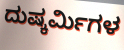
ದುಷ್ಕರ್ಮಿಗಳ